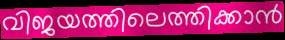
വിജയത്തിലെത്തിക്കാൻ